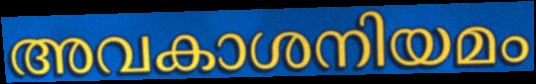
അവകാശനിയമം